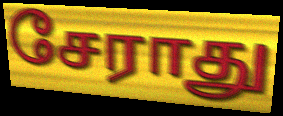
சேராது